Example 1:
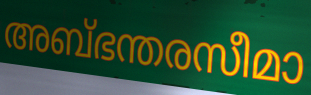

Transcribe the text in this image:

അബ്ഭന്തരസീമാ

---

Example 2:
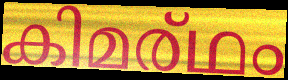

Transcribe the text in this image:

കിമര്ഥം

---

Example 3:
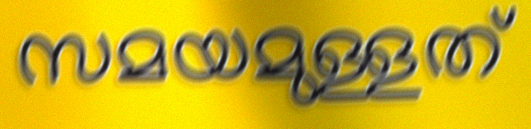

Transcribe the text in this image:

സമയമുള്ളത്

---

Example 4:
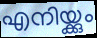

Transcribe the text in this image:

എനിയ്ക്കും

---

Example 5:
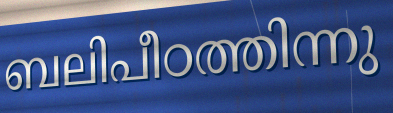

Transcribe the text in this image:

ബലിപീഠത്തിന്നു